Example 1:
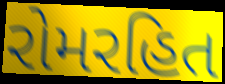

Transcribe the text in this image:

રોમરહિત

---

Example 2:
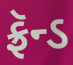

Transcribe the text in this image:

ફ્રૅન્ડ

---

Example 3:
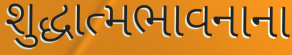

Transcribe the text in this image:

શુદ્ધાત્મભાવનાના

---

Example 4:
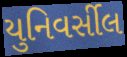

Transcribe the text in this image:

યુનિવર્સીલ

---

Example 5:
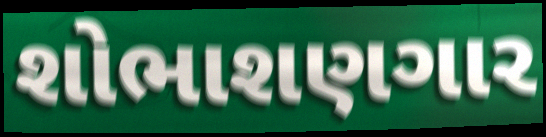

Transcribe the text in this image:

શોભાશણગાર